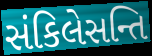
સંકિલેસન્તિ